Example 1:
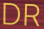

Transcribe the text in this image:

DR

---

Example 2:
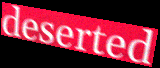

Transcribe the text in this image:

deserted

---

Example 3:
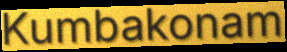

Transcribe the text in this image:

Kumbakonam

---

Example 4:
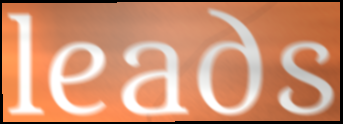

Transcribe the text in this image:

leads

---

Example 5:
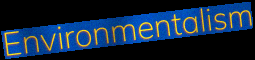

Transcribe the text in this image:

Environmentalism